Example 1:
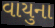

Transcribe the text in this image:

વાયુના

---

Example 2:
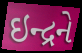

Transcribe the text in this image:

ઇન્દ્રને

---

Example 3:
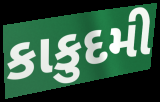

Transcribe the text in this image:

કાકુદમી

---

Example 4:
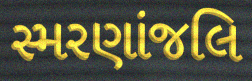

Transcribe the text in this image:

સ્મરણાંજલિ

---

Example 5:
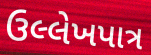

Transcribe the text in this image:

ઉલ્લેખપાત્ર